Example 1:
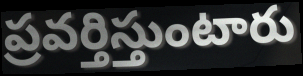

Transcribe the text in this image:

ప్రవర్తిస్తుంటారు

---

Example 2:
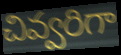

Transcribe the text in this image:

చివ్వరిగా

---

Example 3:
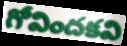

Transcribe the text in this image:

గోవిందకవి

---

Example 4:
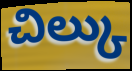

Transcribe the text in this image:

చిల్కు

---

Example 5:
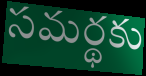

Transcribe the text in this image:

సమర్థకు